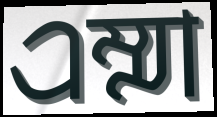
এম্মা